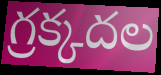
గ్రక్కదల